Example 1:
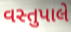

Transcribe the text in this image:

વસ્તુપાલે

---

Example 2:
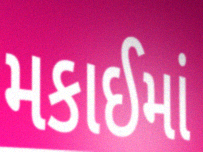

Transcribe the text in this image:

મકાઈમાં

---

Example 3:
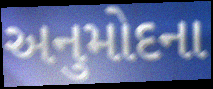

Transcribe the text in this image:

અનુમોદના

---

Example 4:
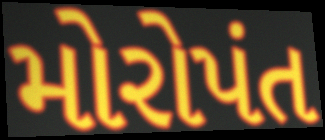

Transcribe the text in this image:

મોરોપંત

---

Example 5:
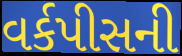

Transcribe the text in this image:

વર્કપીસની